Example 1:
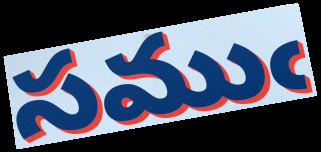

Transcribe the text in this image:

సముఁ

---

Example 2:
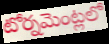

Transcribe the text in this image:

టోర్నమెంట్లలో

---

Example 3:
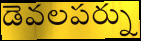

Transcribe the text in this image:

డెవలపర్ను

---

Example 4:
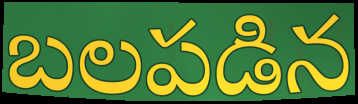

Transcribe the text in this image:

బలపడిన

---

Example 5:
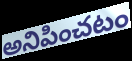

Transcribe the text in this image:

అనిపించటం